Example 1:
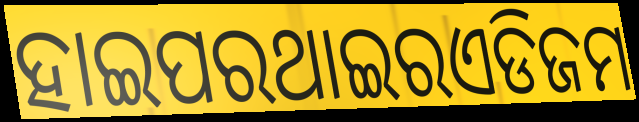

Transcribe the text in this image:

ହାଇପରଥାଇରଏଡିଜମ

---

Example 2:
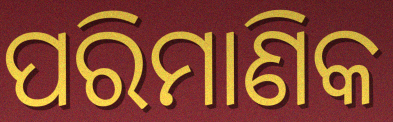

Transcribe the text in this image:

ପରିମାଣିକ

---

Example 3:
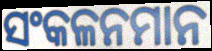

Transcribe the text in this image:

ସଂକଳନମାନ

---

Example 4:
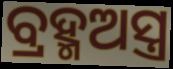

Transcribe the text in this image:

ବ୍ରହ୍ମଅସ୍ତ୍ର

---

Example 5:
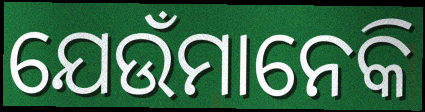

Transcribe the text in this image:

ଯେଉଁମାନେକି